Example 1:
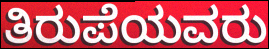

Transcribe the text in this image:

ತಿರುಪೆಯವರು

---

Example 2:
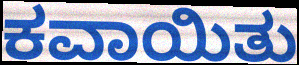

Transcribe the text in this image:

ಕವಾಯಿತು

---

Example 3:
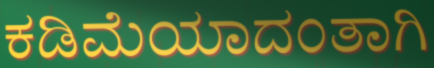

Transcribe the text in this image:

ಕಡಿಮೆಯಾದಂತಾಗಿ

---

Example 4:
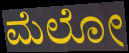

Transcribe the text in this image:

ಮೆಲೋ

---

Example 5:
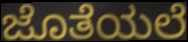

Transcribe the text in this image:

ಜೊತೆಯಲೆ